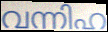
വന്നിഹ